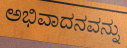
ಅಭಿವಾದನವನ್ನು